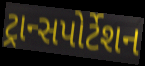
ટ્રાન્સપોર્ટેશન